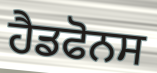
ਹੈਡਫੋਨਸ